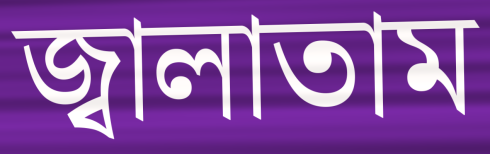
জ্বালাতাম